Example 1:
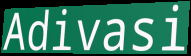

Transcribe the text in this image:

Adivasi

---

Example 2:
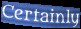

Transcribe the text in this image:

Certainly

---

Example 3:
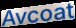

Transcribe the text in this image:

Avcoat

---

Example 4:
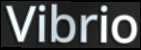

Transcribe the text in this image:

Vibrio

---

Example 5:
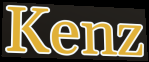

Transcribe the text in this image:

Kenz